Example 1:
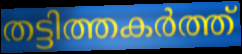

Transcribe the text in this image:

തട്ടിത്തകർത്ത്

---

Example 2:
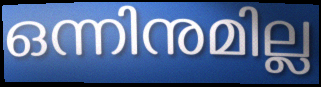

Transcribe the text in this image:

ഒന്നിനുമില്ല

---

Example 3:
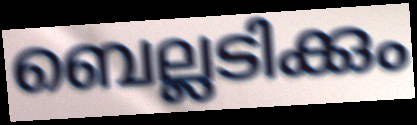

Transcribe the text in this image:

ബെല്ലടിക്കും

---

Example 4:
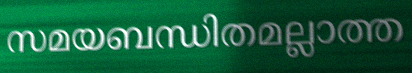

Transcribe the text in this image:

സമയബന്ധിതമല്ലാത്ത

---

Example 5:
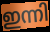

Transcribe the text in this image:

ഇന്നി